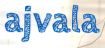
ajvala